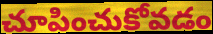
చూపించుకోవడం